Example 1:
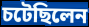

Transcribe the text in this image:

চটেছিলেন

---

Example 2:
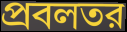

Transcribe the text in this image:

প্রবলতর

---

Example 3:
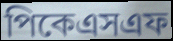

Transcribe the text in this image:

পিকেএসএফ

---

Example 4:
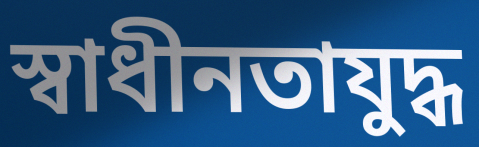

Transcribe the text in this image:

স্বাধীনতাযুদ্ধ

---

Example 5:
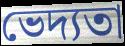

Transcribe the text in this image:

ভেদ্যতা